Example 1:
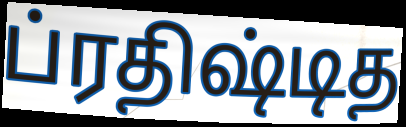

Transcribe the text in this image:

ப்ரதிஷ்டித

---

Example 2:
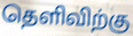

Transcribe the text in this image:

தெளிவிற்கு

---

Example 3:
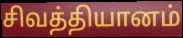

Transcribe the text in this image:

சிவத்தியானம்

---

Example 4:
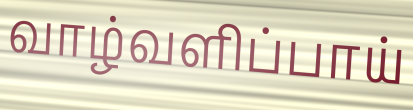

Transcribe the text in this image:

வாழ்வளிப்பாய்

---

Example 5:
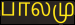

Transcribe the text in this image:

பாலமு